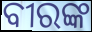
ବୀରଙ୍କ